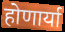
होणार्या